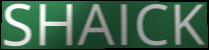
SHAICK